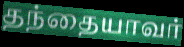
தந்தையாவர்